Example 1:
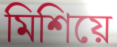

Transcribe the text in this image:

মিশিয়ে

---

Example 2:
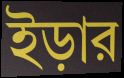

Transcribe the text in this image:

ইড়ার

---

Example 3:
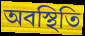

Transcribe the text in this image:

অবস্থিতি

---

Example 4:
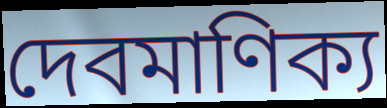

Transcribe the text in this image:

দেবমাণিক্য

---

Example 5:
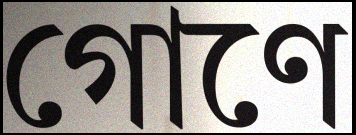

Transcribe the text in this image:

গোণে